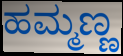
ಹಮ್ಮಣ್ಣ